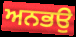
ਅਨਭਉ